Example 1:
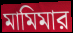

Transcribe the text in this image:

মামিমার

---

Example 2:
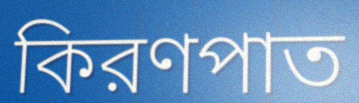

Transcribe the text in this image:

কিরণপাত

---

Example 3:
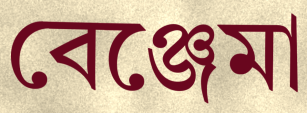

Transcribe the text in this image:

বেঞ্জেমা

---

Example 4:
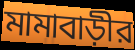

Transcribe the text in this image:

মামাবাড়ীর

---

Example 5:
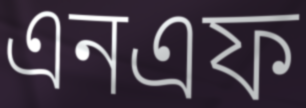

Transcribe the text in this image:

এনএফ